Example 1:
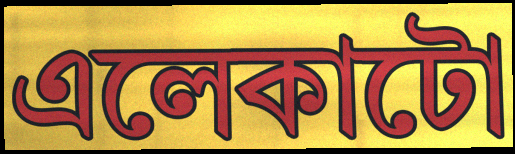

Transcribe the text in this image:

এলেকাটো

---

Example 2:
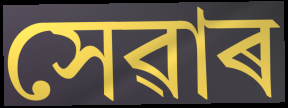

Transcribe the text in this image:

সেৱাৰ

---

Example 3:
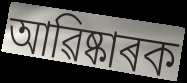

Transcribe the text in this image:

আৱিষ্কাৰক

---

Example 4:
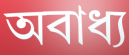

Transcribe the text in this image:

অবাধ্য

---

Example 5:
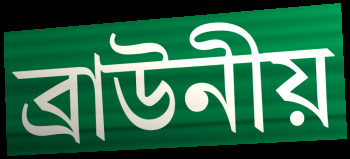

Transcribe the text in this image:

ব্ৰাউনীয়